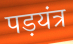
पड़यंत्र